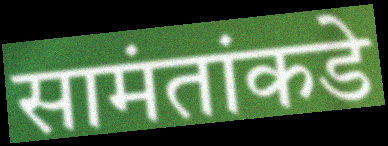
सामंतांकडे